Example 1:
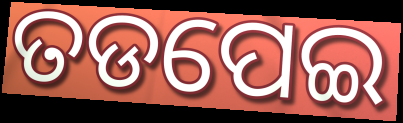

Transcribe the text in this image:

ତଡପେଇ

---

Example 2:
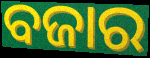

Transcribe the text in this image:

ବଜାର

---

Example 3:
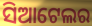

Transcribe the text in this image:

ସିଆଟେଲର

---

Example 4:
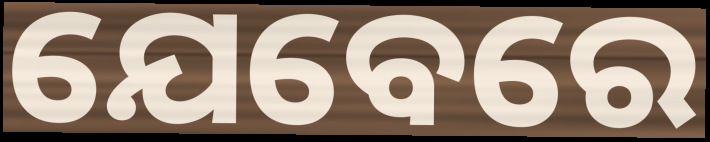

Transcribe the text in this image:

ଯେବେରେ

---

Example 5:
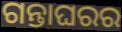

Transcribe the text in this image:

ଗନ୍ତାଘରର